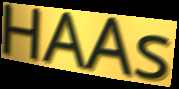
HAAs